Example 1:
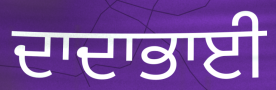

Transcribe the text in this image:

ਦਾਦਾਭਾਈ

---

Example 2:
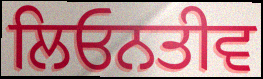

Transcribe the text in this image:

ਲਿਓਨਤੀਵ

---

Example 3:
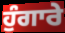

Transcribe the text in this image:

ਹੁੰਗਾਰੇ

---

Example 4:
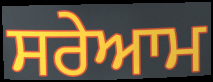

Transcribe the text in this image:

ਸਰੇਆਮ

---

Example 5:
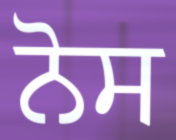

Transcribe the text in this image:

ਨੋਸ